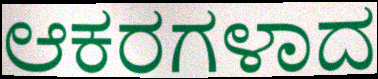
ಆಕರಗಳಾದ